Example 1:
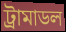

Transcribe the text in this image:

ট্রামাডল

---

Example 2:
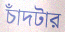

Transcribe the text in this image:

চাঁদটার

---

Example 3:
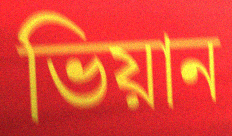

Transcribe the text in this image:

ভিয়ান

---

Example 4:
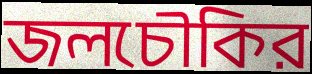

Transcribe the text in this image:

জলচৌকির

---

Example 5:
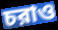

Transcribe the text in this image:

চরাও